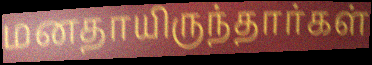
மனதாயிருந்தார்கள்